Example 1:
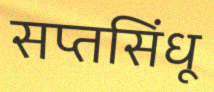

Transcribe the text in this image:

सप्तसिंधू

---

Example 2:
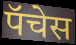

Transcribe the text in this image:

पॅचेस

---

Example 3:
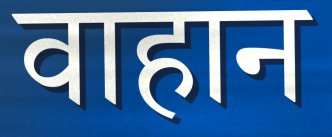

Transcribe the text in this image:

वाहान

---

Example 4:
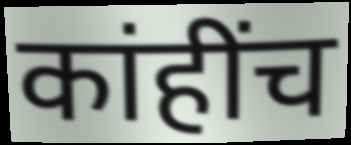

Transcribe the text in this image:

कांहींच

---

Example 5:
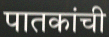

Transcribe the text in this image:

पातकांची